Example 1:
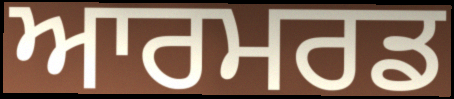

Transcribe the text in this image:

ਆਰਮਰਡ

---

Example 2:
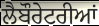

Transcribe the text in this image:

ਲੈਬੌਰੇਟਰੀਆਂ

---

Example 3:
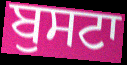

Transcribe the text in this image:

ਬੁਸਟਾ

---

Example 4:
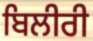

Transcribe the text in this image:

ਬਿਲੀਰੀ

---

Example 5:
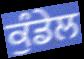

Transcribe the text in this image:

ਕੁੰਡੇਲ